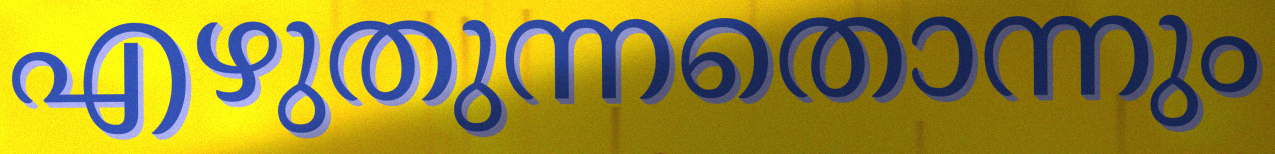
എഴുതുന്നതൊന്നും